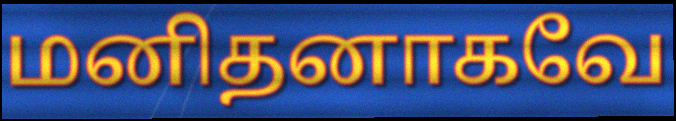
மனிதனாகவே